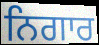
ਨਿਗਾਰ